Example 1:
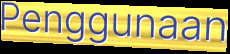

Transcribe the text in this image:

Penggunaan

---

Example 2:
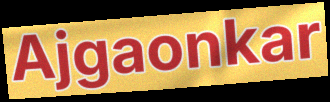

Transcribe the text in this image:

Ajgaonkar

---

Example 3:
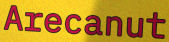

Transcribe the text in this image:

Arecanut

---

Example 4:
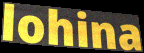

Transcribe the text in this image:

lohina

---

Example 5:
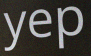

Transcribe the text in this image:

yep